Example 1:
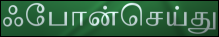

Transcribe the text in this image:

ஃபோன்செய்து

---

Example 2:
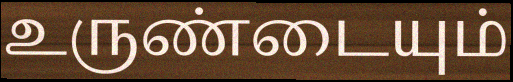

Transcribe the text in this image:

உருண்டையும்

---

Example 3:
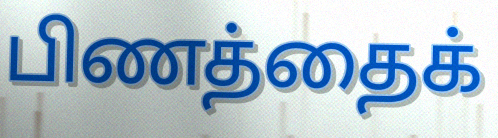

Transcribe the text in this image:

பிணத்தைக்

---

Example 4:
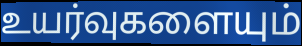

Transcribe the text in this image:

உயர்வுகளையும்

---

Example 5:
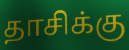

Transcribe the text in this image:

தாசிக்கு